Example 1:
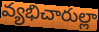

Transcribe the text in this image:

వ్యభిచారుల్లా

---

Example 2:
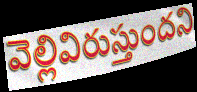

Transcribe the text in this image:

వెల్లివిరుస్తుందని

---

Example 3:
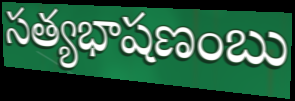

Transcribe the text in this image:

సత్యభాషణంబు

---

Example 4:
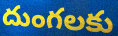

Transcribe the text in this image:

దుంగలకు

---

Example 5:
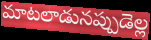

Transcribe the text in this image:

మాటలాడునప్పుడెల్ల